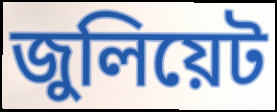
জুলিয়েট